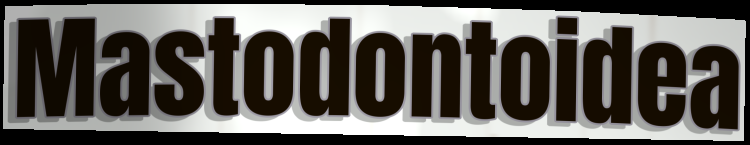
Mastodontoidea